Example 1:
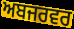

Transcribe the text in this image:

ਅਬਜਰਵਰ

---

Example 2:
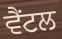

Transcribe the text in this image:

ਵੈਂਟਲ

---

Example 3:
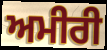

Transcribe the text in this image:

ਅਮੀਰੀ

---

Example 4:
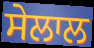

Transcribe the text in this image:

ਸੇਲਾਲ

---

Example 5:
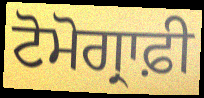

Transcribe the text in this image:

ਟੋਮੋਗ੍ਰਾਫ਼ੀ